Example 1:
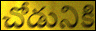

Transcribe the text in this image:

చోడునికి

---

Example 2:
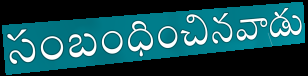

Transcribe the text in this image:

సంబంధించినవాడు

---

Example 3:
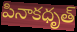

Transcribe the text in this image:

పినాకధృత్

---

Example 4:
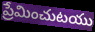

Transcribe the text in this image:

ప్రేమించుటయు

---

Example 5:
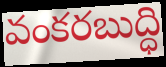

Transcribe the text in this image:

వంకరబుద్ధి